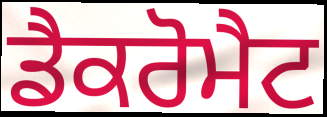
ਡੈਕਰੋਮੈਟ